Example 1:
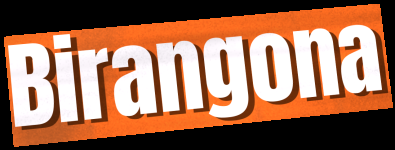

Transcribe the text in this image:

Birangona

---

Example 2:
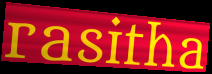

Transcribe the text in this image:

rasitha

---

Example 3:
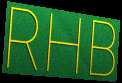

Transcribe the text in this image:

RHB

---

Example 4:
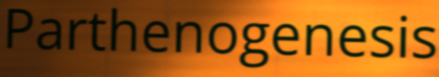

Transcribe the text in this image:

Parthenogenesis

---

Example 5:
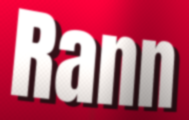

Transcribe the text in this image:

Rann